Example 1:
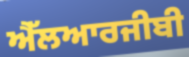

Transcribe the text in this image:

ਐੱਲਆਰਜੀਬੀ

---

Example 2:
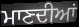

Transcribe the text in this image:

ਮਾਣਦੀਆਂ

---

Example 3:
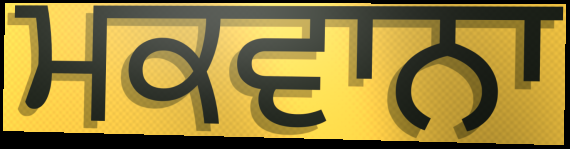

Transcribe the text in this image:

ਮਕਵਾਨਾ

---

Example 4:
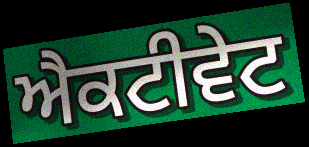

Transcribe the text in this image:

ਐਕਟੀਵੇਟ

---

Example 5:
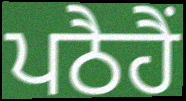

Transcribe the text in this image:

ਪਠੈਹੈਂ